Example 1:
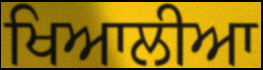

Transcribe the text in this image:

ਖਿਆਲੀਆ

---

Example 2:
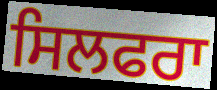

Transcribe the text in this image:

ਸਿਲਫਰਾ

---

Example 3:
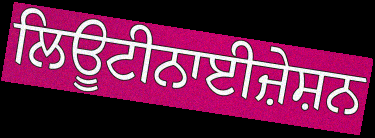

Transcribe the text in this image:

ਲਿਊਟੀਨਾਈਜ਼ੇਸ਼ਨ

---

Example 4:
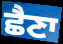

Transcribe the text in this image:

ਛੈਣਾ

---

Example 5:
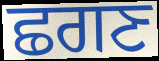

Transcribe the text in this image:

ਛਗਣ